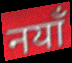
नयाँ